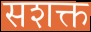
सशक्त